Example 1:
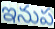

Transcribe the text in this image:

ఇనుప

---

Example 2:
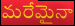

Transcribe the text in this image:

మరేమైనా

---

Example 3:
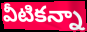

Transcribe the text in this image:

వీటికన్నా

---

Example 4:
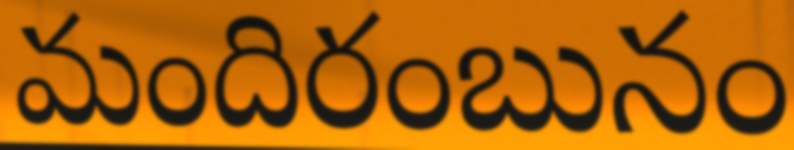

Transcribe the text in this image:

మందిరంబునం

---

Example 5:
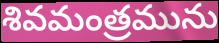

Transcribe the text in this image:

శివమంత్రమును